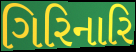
ગિરિનારિ